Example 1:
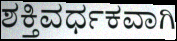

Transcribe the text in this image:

ಶಕ್ತಿವರ್ಧಕವಾಗಿ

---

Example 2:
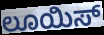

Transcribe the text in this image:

ಲೂಯಿಸ್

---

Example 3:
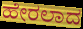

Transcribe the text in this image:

ಹೇರಲಾದ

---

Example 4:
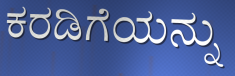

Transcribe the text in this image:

ಕರಡಿಗೆಯನ್ನು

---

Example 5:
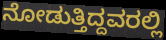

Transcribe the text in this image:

ನೋಡುತ್ತಿದ್ದವರಲ್ಲಿ